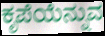
ಕೃಪೆಯೆನ್ನುವ